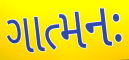
ગાત્મનઃ